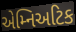
એમ્નિઅટિક